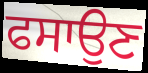
ਫਸਾਉਣ